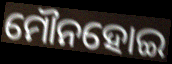
ମୌନହୋଇ